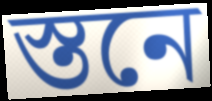
স্তনে